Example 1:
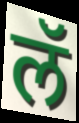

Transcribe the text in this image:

लॅ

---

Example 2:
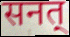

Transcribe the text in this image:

सनत्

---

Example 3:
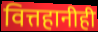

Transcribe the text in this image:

वित्तहानीही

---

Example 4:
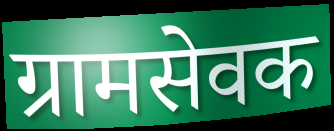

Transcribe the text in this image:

ग्रामसेवक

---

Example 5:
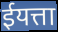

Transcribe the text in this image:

ईयत्ता